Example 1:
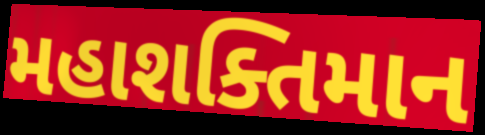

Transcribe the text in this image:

મહાશક્તિમાન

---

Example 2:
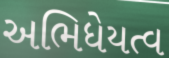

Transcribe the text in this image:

અભિધેયત્વ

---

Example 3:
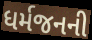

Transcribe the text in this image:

ધર્મજનની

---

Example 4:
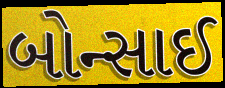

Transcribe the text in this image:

બોન્સાઈ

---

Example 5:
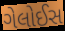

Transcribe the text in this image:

ગેલોઈસ